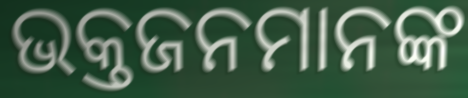
ଭକ୍ତଜନମାନଙ୍କ